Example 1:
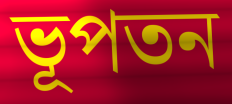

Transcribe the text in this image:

ভূপতন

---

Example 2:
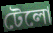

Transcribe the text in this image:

টেলো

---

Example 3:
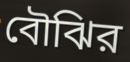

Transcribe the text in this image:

বৌঝির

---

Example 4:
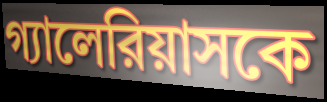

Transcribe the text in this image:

গ্যালেরিয়াসকে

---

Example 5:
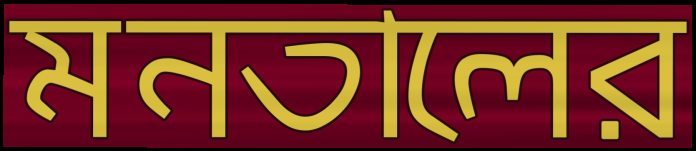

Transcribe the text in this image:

মনতালের